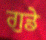
ਗੁਡੇ